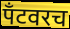
पँटवरच